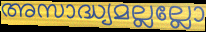
അസാദ്ധ്യമല്ലല്ലോ